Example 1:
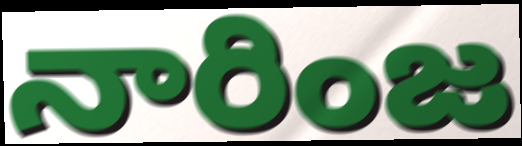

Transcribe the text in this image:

నారింజ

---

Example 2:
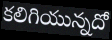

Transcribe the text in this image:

కలిగియున్నదో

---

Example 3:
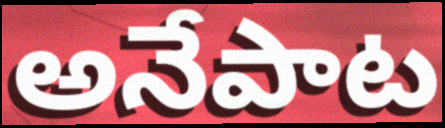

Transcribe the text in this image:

అనేపాట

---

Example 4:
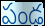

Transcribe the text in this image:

పండ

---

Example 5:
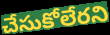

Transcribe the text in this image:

చేసుకోలేరని